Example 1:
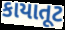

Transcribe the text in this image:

કાયાતૂટ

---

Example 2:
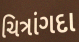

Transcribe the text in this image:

ચિત્રાંગદા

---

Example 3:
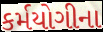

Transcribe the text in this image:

કર્મયોગીના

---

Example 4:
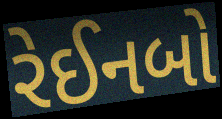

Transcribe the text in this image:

રેઈનબો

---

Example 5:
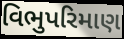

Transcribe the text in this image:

વિભુપરિમાણ